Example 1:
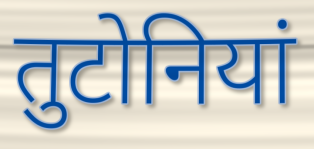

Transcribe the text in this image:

तुटोनियां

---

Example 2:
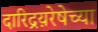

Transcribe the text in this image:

दारिद्रय़रेषेच्या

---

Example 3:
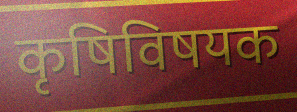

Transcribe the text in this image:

कृषिविषयक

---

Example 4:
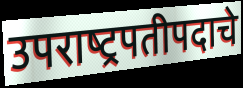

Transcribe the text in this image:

उपराष्ट्रपतीपदाचे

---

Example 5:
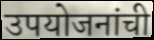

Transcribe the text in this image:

उपयोजनांची